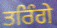
ਤਰਿੰਗੇ